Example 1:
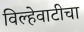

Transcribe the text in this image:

विल्हेवाटीचा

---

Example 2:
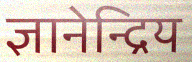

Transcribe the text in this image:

ज्ञानेन्द्रिय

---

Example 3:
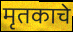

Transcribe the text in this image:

मृतकाचे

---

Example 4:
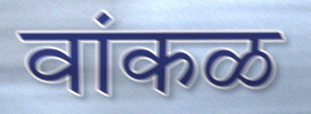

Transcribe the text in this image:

वांकळ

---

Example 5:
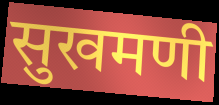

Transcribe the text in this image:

सुखमणी